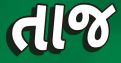
તાજ